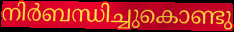
നിർബന്ധിച്ചുകൊണ്ടു